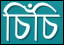
চিঁচি